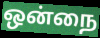
ஒன்நை